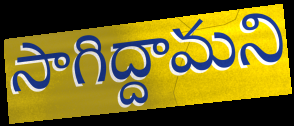
సాగిద్దామని